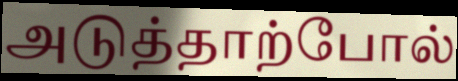
அடுத்தாற்போல்